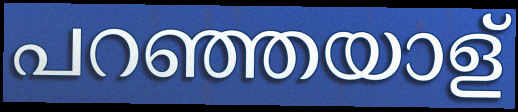
പറഞ്ഞയാള്